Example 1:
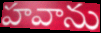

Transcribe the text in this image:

హవాను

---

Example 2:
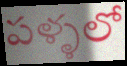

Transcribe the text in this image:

పళ్ళలో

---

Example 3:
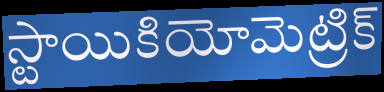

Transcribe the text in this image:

స్టాయికియోమెట్రిక్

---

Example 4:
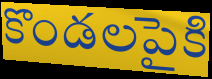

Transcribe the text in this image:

కొండలపైకి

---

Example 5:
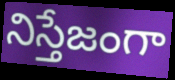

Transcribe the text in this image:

నిస్తేజంగా